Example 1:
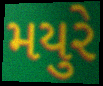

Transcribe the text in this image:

મયુરે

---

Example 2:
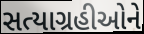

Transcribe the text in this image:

સત્યાગ્રહીઓને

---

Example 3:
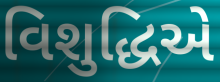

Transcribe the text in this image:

વિશુદ્ધિએ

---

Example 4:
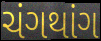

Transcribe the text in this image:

ચંગથાંગ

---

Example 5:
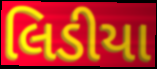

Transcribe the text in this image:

લિડીયા